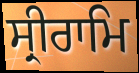
ਸ੍ਰੀਰਾਮਿ